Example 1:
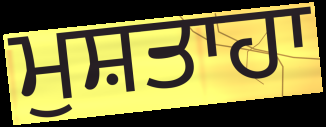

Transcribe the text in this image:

ਮੁਸ਼ਤਾਹਾ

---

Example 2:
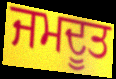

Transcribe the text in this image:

ਜਮਦੂਤ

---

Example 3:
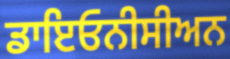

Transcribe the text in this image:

ਡਾਇਓਨੀਸੀਅਨ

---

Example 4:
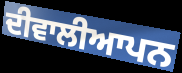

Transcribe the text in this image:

ਦੀਵਾਲੀਆਪਨ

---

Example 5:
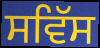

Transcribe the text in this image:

ਸਵਿੱਸ